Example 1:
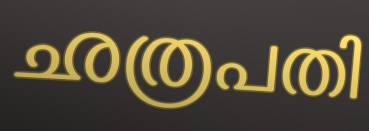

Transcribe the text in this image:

ഛത്രപതി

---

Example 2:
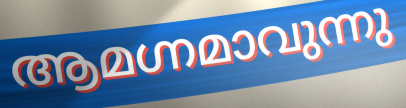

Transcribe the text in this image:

ആമഗ്നമാവുന്നു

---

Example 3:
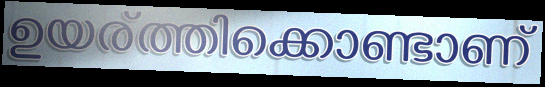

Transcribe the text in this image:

ഉയര്ത്തിക്കൊണ്ടാണ്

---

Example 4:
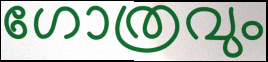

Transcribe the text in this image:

ഗോത്രവും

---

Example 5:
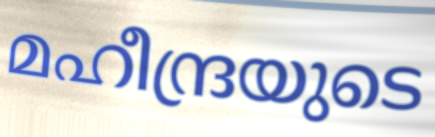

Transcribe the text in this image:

മഹീന്ദ്രയുടെ